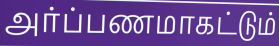
அர்ப்பணமாகட்டும்